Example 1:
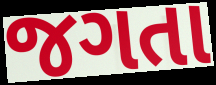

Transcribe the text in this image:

જગતા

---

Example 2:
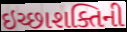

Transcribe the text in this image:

ઇચ્છાશક્તિની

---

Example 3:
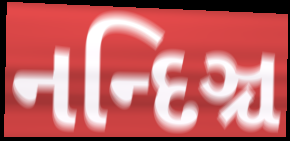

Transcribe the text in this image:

નન્દિઞ્ચ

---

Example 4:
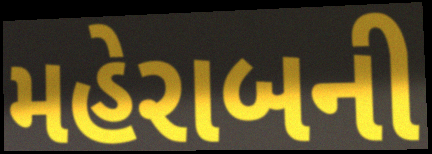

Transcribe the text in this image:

મહેરાબની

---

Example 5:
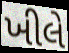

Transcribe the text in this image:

ખીલે